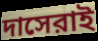
দাসেরাই